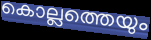
കൊല്ലത്തെയും